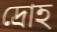
দ্রোহ